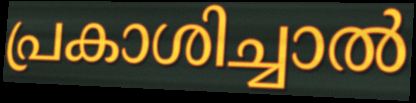
പ്രകാശിച്ചാൽ